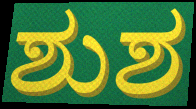
ಶುಶ